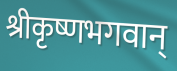
श्रीकृष्णभगवान्